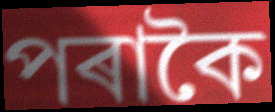
পৰাকৈ